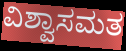
ವಿಶ್ವಾಸಮತ